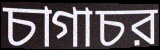
চাগাচর